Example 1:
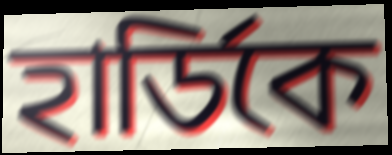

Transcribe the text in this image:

হার্ডিকে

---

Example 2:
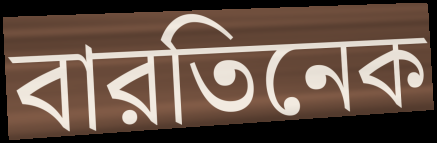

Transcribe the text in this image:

বারতিনেক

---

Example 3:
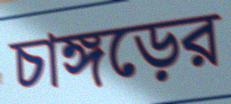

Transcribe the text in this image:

চাঙ্গড়ের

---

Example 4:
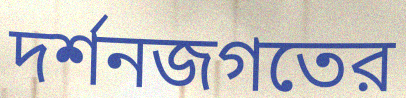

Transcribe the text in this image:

দর্শনজগতের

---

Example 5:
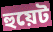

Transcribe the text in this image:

হুয়েট